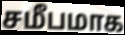
சமீபமாக